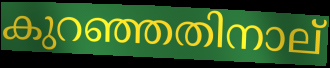
കുറഞ്ഞതിനാല്